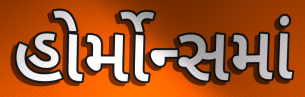
હોર્મોન્સમાં